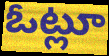
ఓట్లూ